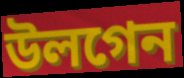
উলগেন